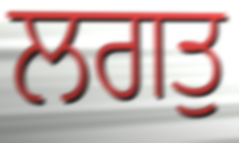
ਲਗਤੁ